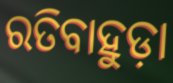
ରତିବାହୁଡ଼ା